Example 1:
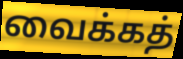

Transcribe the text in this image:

வைக்கத்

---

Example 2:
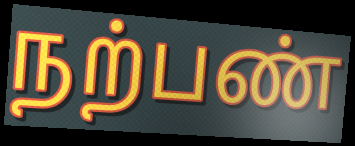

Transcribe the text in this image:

நற்பண்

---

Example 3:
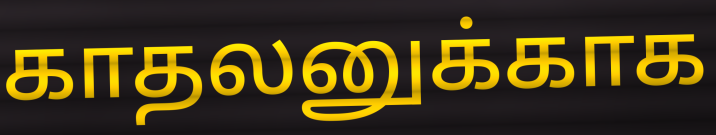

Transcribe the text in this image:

காதலனுக்காக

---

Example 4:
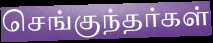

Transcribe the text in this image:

செங்குந்தர்கள்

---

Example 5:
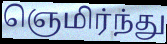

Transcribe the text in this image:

ஞெமிர்ந்து